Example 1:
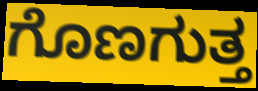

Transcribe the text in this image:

ಗೊಣಗುತ್ತ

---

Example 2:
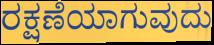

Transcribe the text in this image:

ರಕ್ಷಣೆಯಾಗುವುದು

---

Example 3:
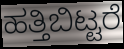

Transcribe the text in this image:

ಹತ್ತಿಬಿಟ್ಟರೆ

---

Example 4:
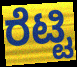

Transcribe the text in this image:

ರೆಟ್ಟಿ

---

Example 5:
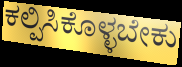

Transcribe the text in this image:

ಕಲ್ಪಿಸಿಕೊಳ್ಳಬೇಕು